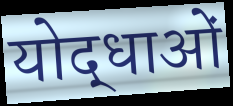
योद्धाओं